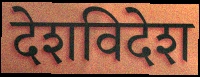
देशविदेश